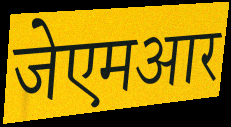
जेएमआर